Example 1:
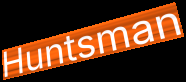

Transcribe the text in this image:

Huntsman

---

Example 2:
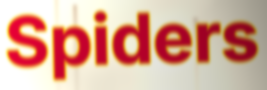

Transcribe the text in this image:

Spiders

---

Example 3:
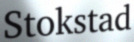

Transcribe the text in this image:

Stokstad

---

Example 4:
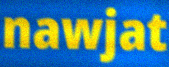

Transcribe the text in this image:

nawjat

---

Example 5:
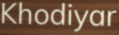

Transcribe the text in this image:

Khodiyar